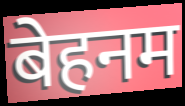
बेहनम